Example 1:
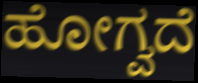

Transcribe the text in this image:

ಹೋಗ್ವದೆ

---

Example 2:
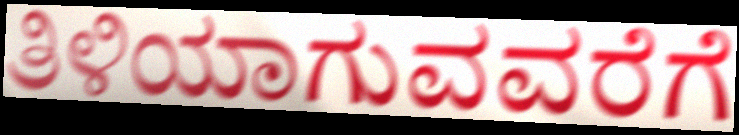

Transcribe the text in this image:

ತಿಳಿಯಾಗುವವರೆಗೆ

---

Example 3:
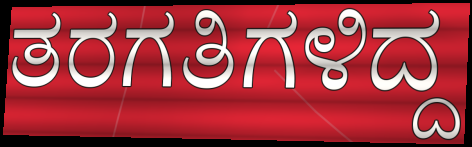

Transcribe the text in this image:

ತರಗತಿಗಳಿದ್ದ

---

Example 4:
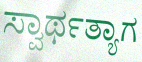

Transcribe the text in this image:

ಸ್ವಾರ್ಥತ್ಯಾಗ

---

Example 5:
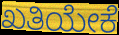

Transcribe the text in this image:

ಖತಿಯೇಕೆ